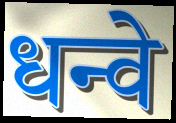
धन्वे